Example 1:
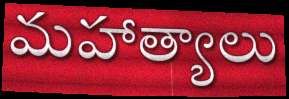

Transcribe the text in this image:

మహాత్యాలు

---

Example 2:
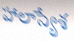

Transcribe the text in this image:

హాలాస్యేశ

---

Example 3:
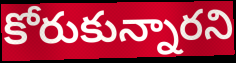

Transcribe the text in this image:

కోరుకున్నారని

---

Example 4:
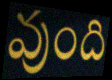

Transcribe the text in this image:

వుంది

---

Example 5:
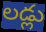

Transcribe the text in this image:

లడ్లు